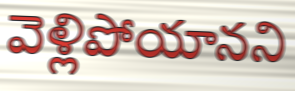
వెళ్లిపోయానని